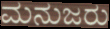
ಮನುಜರು